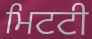
ਮਿਟਟੀ